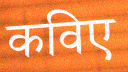
कविए